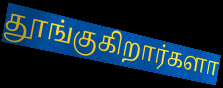
தூங்குகிறார்களா